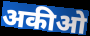
अकीओ